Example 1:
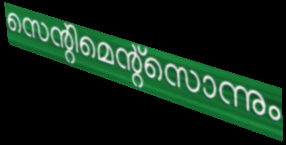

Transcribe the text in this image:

സെന്റിമെന്റ്സൊന്നും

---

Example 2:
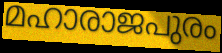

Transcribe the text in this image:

മഹാരാജപുരം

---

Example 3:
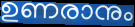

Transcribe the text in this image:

ഉണരാനും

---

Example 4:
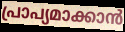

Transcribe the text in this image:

പ്രാപ്യമാക്കാൻ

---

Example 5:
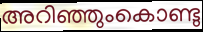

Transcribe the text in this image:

അറിഞ്ഞുംകൊണ്ടു